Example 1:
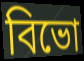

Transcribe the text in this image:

বিভো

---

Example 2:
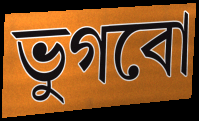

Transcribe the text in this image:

ভুগবো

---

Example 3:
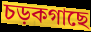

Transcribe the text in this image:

চড়কগাছে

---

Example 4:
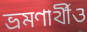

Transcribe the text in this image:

ভ্রমণার্থীও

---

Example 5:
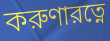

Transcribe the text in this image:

করুণারত্নে